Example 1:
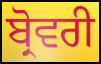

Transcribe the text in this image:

ਬ੍ਰੋਵਰੀ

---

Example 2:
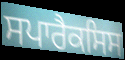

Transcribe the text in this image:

ਸਪਾਰੈਕਸਿਸ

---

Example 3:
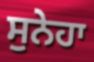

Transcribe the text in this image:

ਸੁਨੇਹਾ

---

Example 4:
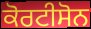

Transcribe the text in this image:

ਕੋਰਟੀਸੋਨ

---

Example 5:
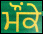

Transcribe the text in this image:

ਮੌੰਕੇ